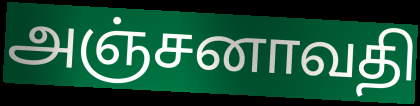
அஞ்சனாவதி